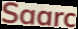
Saarc